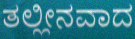
ತಲ್ಲೀನವಾದ